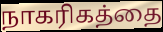
நாகரிகத்தை